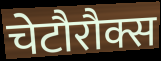
चेटौरौक्स